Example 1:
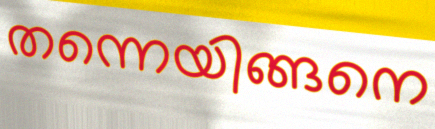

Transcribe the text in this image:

തന്നെയിങ്ങനെ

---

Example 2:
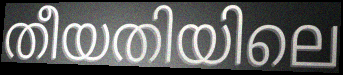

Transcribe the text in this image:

തീയതിയിലെ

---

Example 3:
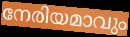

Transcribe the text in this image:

നേരിയമാവും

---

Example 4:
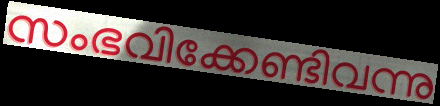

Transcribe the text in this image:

സംഭവിക്കേണ്ടിവന്നു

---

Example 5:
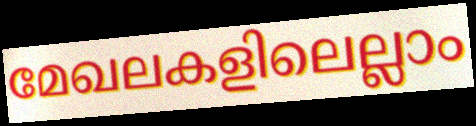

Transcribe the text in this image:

മേഖലകളിലെല്ലാം